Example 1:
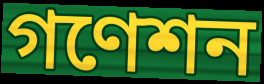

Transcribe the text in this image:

গণেশন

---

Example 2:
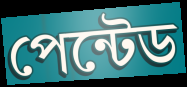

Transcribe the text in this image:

পেন্টেড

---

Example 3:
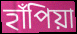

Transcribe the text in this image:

হাঁপিয়া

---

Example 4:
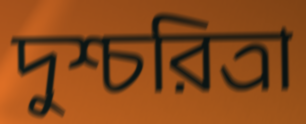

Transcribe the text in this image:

দুশ্চরিত্রা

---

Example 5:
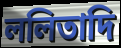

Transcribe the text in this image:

ললিতাদি